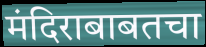
मंदिराबाबतचा